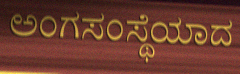
ಅಂಗಸಂಸ್ಥೆಯಾದ